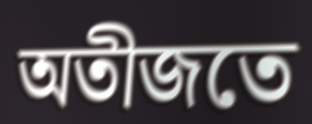
অতীজতে